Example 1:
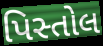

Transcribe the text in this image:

પિસ્તોલ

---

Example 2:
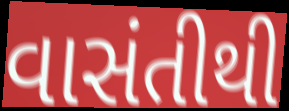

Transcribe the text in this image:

વાસંતીથી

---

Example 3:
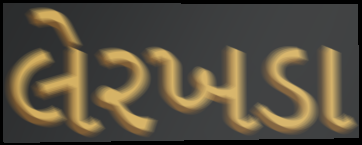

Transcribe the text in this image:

લેરખડા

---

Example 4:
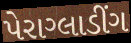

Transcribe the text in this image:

પેરાગ્લાડીંગ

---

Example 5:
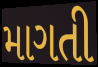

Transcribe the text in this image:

માગતી